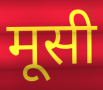
मूसी